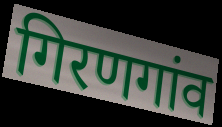
गिरणगांव